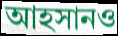
আহসানও